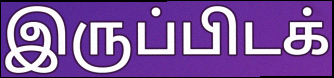
இருப்பிடக்